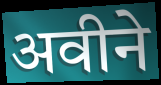
अवीने